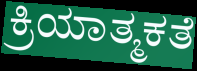
ಕ್ರಿಯಾತ್ಮಕತೆ